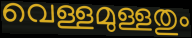
വെള്ളമുള്ളതും